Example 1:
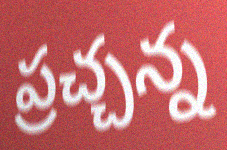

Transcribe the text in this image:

ప్రచ్చన్న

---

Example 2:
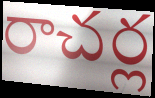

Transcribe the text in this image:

రాచర్ల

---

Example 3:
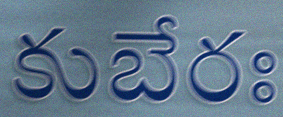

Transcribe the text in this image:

కుబేరః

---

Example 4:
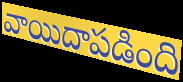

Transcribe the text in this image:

వాయిదాపడింది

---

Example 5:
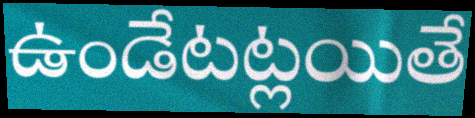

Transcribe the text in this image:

ఉండేటట్లయితే